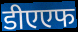
डीएएफ